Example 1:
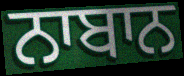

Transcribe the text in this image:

ਨਾਬਾਨ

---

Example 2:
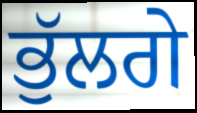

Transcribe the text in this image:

ਭੁੱਲਗੇ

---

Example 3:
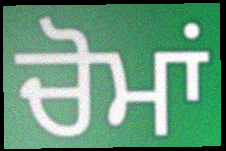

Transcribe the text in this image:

ਚੋਮਾਂ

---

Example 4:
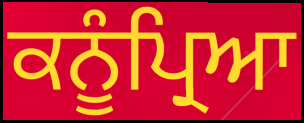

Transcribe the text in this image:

ਕਨੂੰਪ੍ਰਿਆ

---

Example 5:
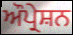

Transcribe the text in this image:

ਔਪ੍ਰੇਸ਼ਨ